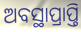
ଅବସ୍ଥାପ୍ରାପ୍ତି